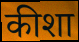
कीशा